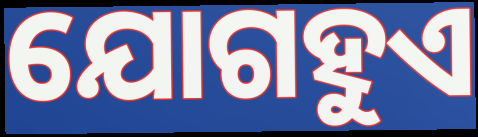
ଯୋଗହୁଏ